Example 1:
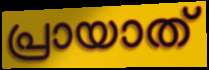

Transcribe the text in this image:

പ്രായാത്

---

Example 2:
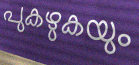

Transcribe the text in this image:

പുകഴുകയും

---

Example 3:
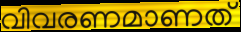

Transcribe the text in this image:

വിവരണമാണത്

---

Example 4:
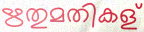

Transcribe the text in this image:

ഋതുമതികള്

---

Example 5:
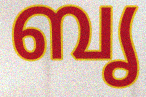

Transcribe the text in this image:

ബൃ